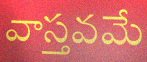
వాస్తవమే